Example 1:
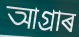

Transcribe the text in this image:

আগ্ৰাৰ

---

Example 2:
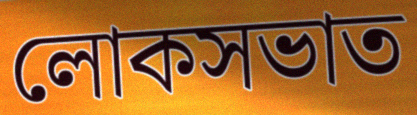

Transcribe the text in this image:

লোকসভাত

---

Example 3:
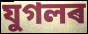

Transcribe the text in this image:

যুগলৰ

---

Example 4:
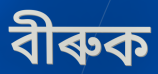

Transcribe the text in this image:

বীৰুক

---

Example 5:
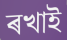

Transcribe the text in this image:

ৰখাই